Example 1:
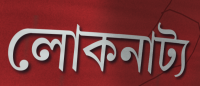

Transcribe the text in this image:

লোকনাট্য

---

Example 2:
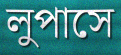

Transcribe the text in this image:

লুপাসে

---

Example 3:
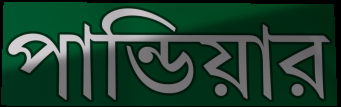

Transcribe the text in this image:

পান্ডিয়ার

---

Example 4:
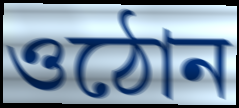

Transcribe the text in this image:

ওঠোন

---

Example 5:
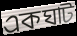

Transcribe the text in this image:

একঘাট